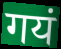
गयं